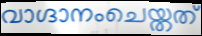
വാഗ്ദാനംചെയ്തത്